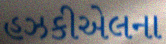
હઝકીએલના